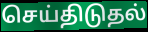
செய்திடுதல்